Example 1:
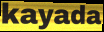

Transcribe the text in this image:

kayada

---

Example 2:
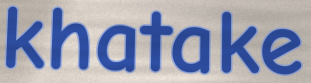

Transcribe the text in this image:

khatake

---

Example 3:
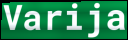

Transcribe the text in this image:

Varija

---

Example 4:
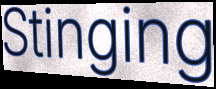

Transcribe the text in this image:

Stinging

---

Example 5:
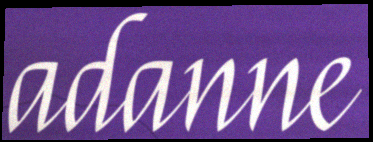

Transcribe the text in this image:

adanne